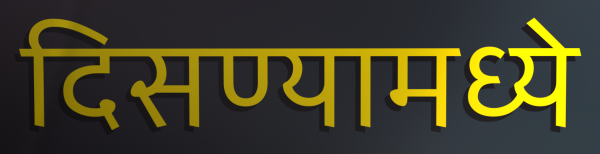
दिसण्यामध्ये